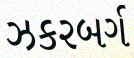
ઝકરબર્ગ